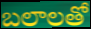
బలాలతో